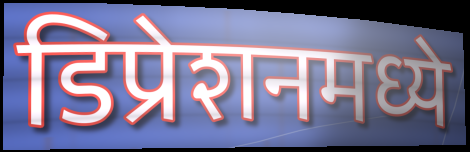
डिप्रेशनमध्ये